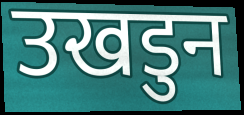
उखडुन